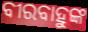
ବୀରବାହୁଙ୍କ